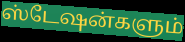
ஸ்டேஷன்களும்